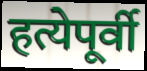
हत्येपूर्वी